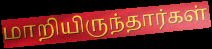
மாறியிருந்தார்கள்